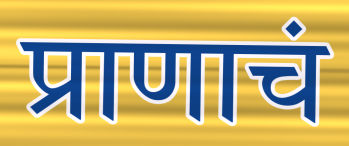
प्राणाचं